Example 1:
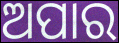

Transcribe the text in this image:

ଅପାର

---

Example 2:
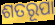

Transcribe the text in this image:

ଶତରୂପା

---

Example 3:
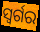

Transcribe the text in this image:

ସ୍ୱର୍ଗର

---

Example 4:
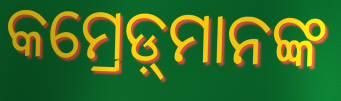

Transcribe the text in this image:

କମ୍ରେଡ଼୍‌ମାନଙ୍କ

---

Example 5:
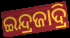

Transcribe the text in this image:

ଇନ୍ଦ୍ରଜାଦ୍ରି